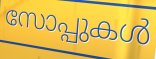
സോപ്പുകൾ